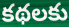
కథలకు